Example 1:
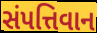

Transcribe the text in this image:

સંપત્તિવાન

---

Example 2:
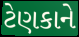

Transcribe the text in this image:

ટેણકાને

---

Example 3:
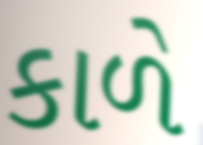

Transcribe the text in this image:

કાળે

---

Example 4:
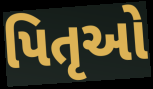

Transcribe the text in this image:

પિતૃઓ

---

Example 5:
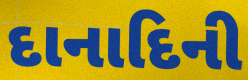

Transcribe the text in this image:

દાનાદિની